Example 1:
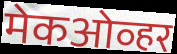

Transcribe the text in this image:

मेकओव्हर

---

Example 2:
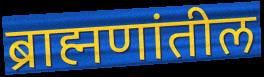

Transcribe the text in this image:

ब्राह्मणांतील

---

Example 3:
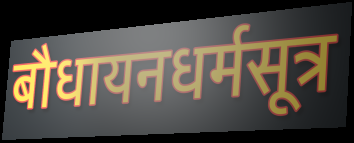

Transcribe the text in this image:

बौधायनधर्मसूत्र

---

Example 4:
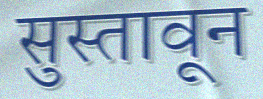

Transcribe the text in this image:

सुस्तावून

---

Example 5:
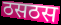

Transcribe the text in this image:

ठसठस